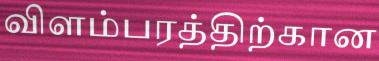
விளம்பரத்திற்கான